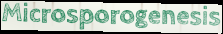
Microsporogenesis